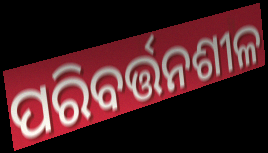
ପରିବର୍ତ୍ତନଶୀଳ